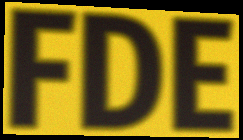
FDE